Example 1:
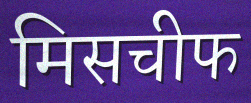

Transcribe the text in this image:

मिसचीफ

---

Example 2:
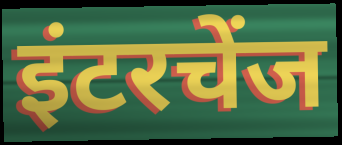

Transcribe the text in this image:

इंटरचेंज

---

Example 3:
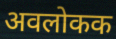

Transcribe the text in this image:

अवलोकक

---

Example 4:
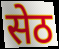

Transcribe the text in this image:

सेठ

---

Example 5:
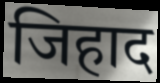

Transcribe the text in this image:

जिहाद